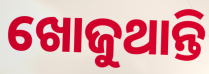
ଖୋଜୁଥାନ୍ତି